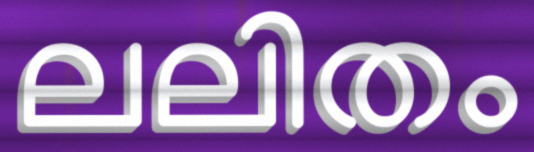
ലലിതം